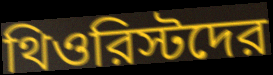
থিওরিস্টদের